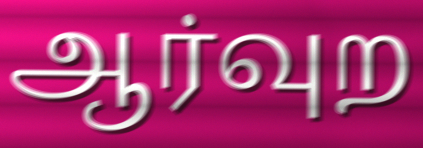
ஆர்வுற